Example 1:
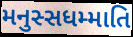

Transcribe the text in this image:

મનુસ્સધમ્માતિ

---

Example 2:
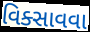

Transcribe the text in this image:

વિક્સાવવા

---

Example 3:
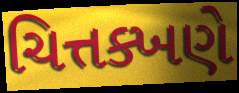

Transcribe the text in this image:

ચિત્તક્ખણે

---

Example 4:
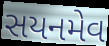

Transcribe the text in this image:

સયનમેવ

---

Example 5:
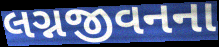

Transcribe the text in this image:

લગ્નજીવનના